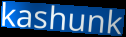
kashunk